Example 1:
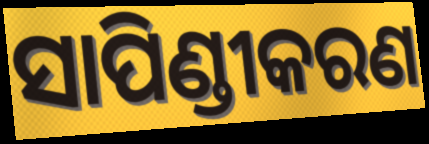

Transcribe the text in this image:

ସାପିଣ୍ଡୀକରଣ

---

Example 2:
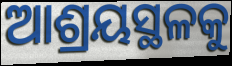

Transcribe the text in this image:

ଆଶ୍ରୟସ୍ଥଳକୁ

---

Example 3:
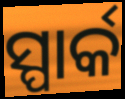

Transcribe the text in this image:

ସ୍ପାର୍କ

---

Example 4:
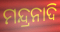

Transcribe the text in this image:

ମନ୍ଦ୍ରନାଦି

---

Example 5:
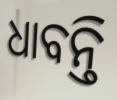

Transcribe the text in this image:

ଧାବନ୍ତି